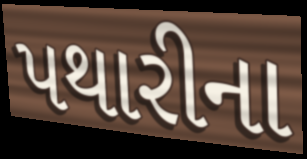
પથારીના